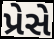
પ્રેસે